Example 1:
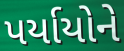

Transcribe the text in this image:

પર્યાયોને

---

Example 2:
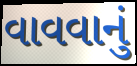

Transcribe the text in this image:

વાવવાનું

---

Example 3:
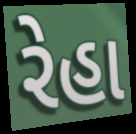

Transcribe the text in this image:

રેહા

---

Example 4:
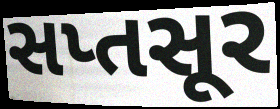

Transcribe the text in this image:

સપ્તસૂર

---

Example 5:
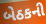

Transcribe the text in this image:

બેઠકની